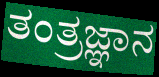
ತಂತ್ರಜ್ಞಾನ